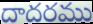
దాదరము